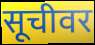
सूचीवर